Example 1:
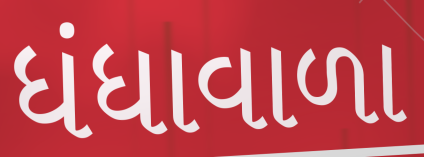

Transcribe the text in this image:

ધંધાવાળા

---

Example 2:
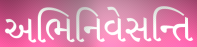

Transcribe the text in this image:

અભિનિવેસન્તિ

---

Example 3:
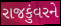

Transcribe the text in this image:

રાજકુંવરને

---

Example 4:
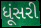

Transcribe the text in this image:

ધૂંસરી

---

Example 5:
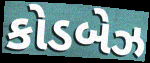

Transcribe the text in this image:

કોડબેઝ